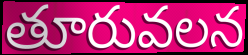
తూరువలన